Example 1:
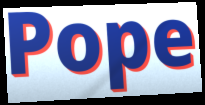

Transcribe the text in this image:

Pope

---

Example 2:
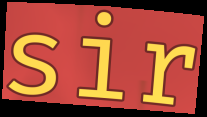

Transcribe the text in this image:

sir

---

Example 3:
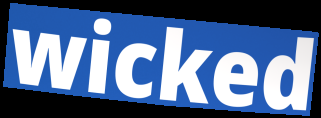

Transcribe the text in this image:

wicked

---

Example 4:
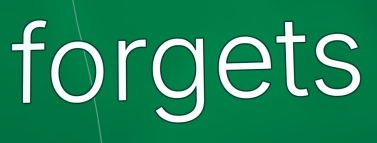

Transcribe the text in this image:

forgets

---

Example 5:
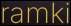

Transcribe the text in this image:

ramki